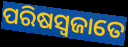
ପରିଷସ୍ଵଜାତେ